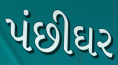
પંછીઘર